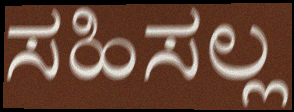
ಸಹಿಸಲ್ಲ